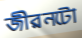
জীৱনটো